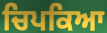
ਚਿਪਕਿਆ